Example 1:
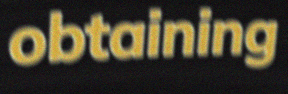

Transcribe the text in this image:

obtaining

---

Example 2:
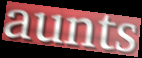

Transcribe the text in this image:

aunts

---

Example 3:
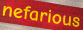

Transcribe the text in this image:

nefarious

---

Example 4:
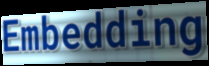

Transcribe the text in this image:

Embedding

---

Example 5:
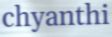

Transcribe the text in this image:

chyanthi